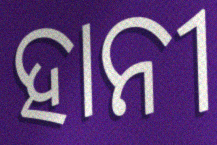
ହାନୀ